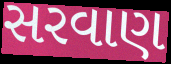
સરવાણ